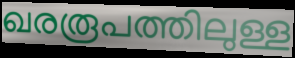
ഖരരൂപത്തിലുള്ള